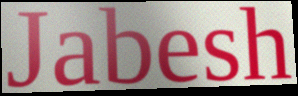
Jabesh